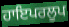
ਹਾਇਪਰਲੂਪ